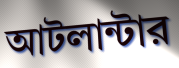
আটলান্টার